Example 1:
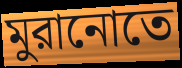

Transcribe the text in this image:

মুরানোতে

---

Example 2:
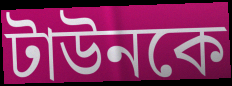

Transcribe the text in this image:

টাউনকে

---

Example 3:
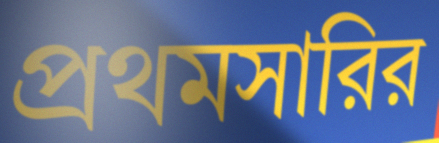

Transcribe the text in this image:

প্রথমসারির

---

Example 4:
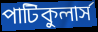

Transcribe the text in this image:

পাটিকুলার্স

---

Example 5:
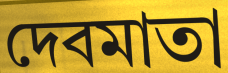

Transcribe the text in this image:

দেবমাতা